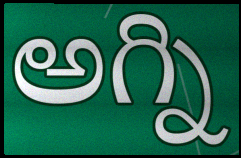
అగ్ని